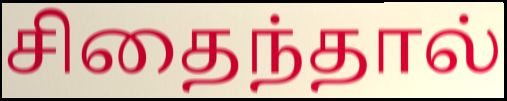
சிதைந்தால்